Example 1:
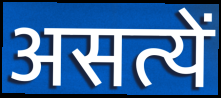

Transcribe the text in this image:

असत्यें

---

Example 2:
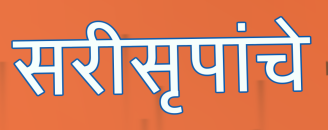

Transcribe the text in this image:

सरीसृपांचे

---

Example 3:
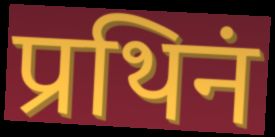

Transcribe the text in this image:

प्रथिनं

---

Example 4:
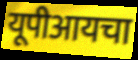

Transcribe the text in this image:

यूपीआयचा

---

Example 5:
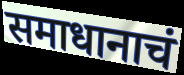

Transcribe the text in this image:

समाधानाचं